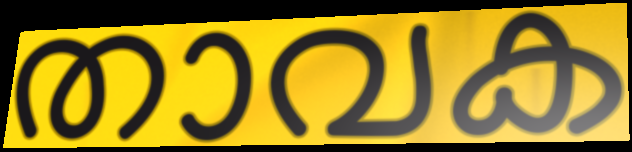
താവക